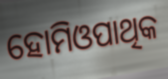
ହୋମିଓପାଥିକ